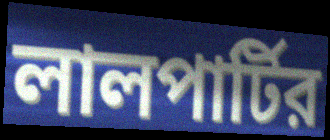
লালপার্টির